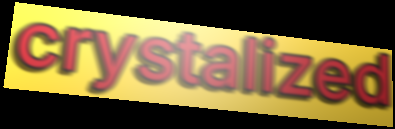
crystalized